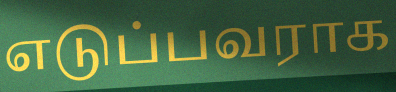
எடுப்பவராக